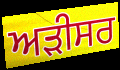
ਅੜੀਸਰ